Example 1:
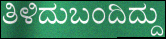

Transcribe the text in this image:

ತಿಳಿದುಬಂದಿದ್ದು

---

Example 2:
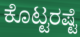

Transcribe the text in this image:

ಕೊಟ್ಟರಷ್ಟೆ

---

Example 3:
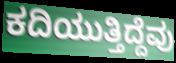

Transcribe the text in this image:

ಕದಿಯುತ್ತಿದ್ದೆವು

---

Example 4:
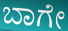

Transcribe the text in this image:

ಬಾಗೇ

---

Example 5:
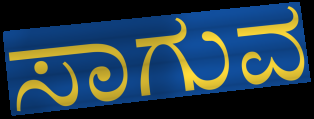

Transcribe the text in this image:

ಸಾಗುವ